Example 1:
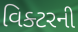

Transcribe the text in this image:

વિક્ટરની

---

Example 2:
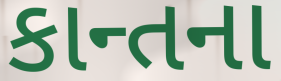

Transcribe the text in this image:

કાન્તના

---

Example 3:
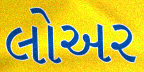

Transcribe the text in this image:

લોઅર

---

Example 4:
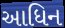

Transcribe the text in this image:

આધિન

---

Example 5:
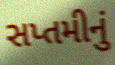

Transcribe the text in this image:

સપ્તમીનું